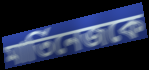
মার্তিনেজকে